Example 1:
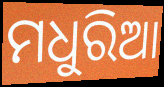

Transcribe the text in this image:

ମଧୁରିଆ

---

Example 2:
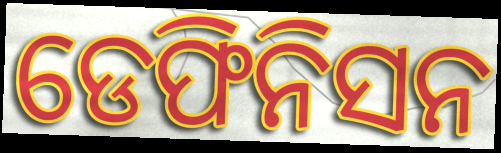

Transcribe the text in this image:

ଡେଫିନିସନ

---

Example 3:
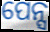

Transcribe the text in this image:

ପେନ୍ସ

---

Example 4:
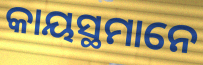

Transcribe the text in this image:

କାୟସ୍ଥମାନେ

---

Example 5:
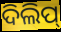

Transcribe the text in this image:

ଦିଲିପ୍